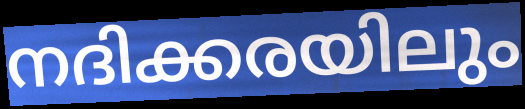
നദിക്കരയിലും